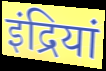
इंद्रियां